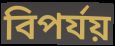
বিপৰ্যয়